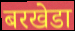
बरखेडा